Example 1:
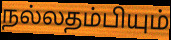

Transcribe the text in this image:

நல்லதம்பியும்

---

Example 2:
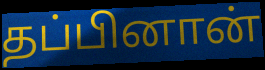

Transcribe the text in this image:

தப்பினான்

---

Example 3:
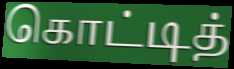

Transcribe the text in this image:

கொட்டித்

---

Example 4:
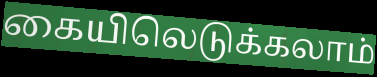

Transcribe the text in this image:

கையிலெடுக்கலாம்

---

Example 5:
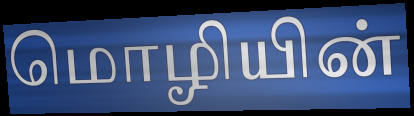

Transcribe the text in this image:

மொழியின்